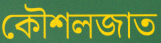
কৌশলজাত